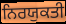
ਨਿਰਯੁਕਤੀ